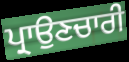
ਪ੍ਰਾਉਣਚਾਰੀ